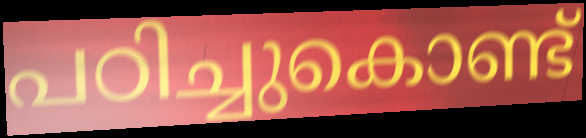
പഠിച്ചുകൊണ്ട്